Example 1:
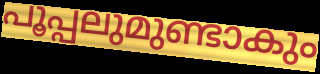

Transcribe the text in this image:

പൂപ്പലുമുണ്ടാകും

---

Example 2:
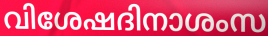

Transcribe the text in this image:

വിശേഷദിനാശംസ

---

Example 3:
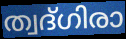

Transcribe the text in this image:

ത്വദ്ഗിരാ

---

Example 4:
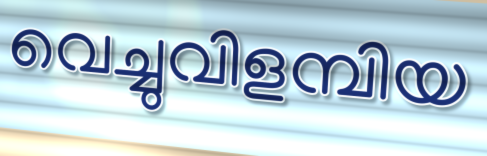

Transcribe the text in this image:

വെച്ചുവിളമ്പിയ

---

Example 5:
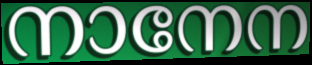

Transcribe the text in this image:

നാനേന